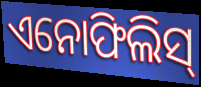
ଏନୋଫିଲିସ୍